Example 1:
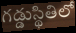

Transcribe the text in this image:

గడ్డుస్థితిలో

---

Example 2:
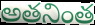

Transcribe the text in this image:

అతనింత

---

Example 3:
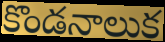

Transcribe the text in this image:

కొండనాలుక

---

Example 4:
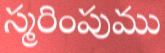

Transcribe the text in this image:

స్మరింపుము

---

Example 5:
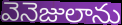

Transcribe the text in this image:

వెనెజులాను